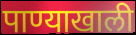
पाण्‍याखाली